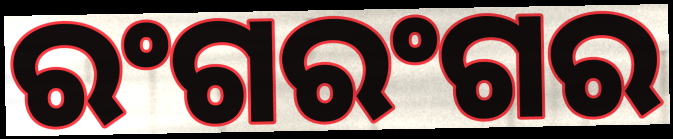
ରଂଗରଂଗର